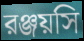
রঞ্জয়সি